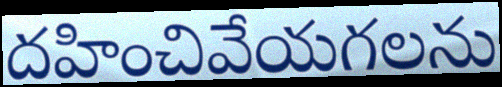
దహించివేయగలను